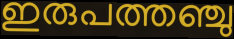
ഇരുപത്തഞ്ചു